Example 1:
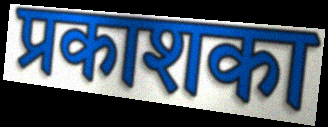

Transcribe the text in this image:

प्रकाशका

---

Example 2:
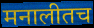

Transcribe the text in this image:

मनालीतच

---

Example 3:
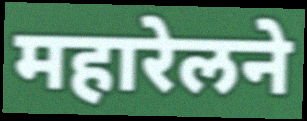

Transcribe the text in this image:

महारेलने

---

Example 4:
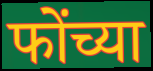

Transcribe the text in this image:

फोंच्या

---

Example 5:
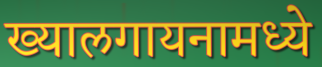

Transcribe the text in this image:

ख्यालगायनामध्ये